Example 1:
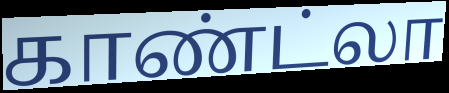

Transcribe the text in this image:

காண்ட்லா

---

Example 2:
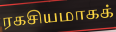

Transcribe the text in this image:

ரகசியமாகக்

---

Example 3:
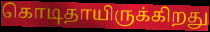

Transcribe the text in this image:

கொடிதாயிருக்கிறது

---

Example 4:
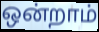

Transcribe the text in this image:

ஒன்றாம்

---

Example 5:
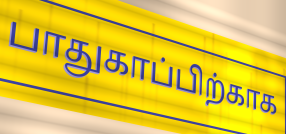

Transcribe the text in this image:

பாதுகாப்பிற்காக